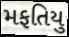
મફતિયુ